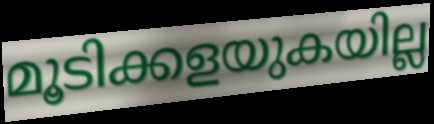
മൂടിക്കളയുകയില്ല